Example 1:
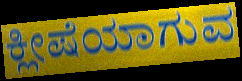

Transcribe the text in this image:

ಕ್ಲೀಷೆಯಾಗುವ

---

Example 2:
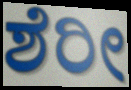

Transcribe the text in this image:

ಶೆರೀ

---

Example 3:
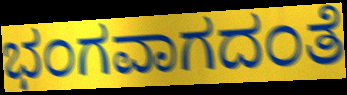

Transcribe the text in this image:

ಭಂಗವಾಗದಂತೆ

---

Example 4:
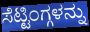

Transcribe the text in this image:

ಸೆಟ್ಟಿಂಗ್ಗಳನ್ನು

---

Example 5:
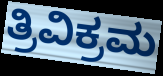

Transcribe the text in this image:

ತ್ರಿವಿಕ್ರಮ